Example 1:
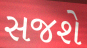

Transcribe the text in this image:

સજશે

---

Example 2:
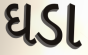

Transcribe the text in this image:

ઘડા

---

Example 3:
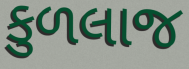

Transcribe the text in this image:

કુળલાજ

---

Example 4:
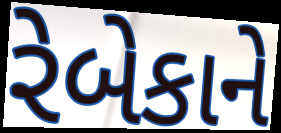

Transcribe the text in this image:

રેબેકાને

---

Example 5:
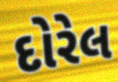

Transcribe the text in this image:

દોરેલ